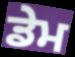
ਡੇਮ